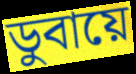
ডুবায়ে